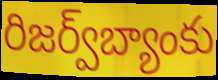
రిజర్వ్‌బ్యాంకు